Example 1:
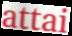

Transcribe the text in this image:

attai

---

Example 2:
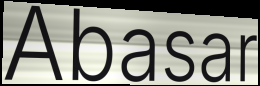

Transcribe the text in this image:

Abasar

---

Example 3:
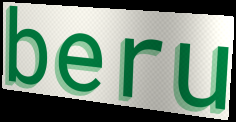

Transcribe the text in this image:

beru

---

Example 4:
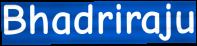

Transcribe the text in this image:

Bhadriraju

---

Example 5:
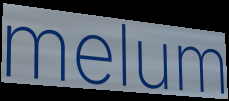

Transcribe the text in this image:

melum